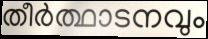
തീർത്ഥാടനവും